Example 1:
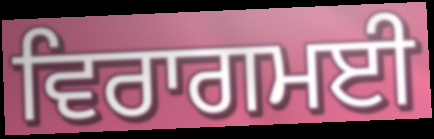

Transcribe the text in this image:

ਵਿਰਾਗਮਈ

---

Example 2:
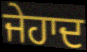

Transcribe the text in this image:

ਜੇਹਾਦ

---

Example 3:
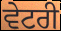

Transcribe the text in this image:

ਵੇਟਰੀ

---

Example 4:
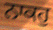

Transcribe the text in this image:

ਨਾਕਹੁ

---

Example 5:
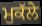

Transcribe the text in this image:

ਮੁਕੱਲੇ